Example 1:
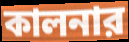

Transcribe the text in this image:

কালনার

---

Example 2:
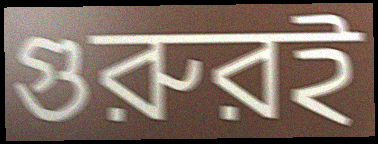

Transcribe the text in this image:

গুরুরই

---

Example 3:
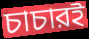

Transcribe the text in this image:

চাচারই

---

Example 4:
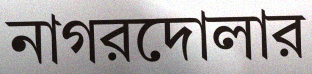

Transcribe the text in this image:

নাগরদোলার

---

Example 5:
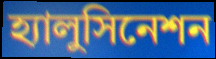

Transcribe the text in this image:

হ্যালুসিনেশন